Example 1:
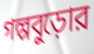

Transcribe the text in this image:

গল্পবুড়োর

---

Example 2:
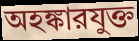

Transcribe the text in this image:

অহঙ্কারযুক্ত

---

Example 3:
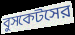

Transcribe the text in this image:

বুসকেটসের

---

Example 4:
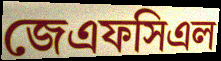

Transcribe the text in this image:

জেএফসিএল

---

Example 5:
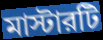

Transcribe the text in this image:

মাস্টারটি